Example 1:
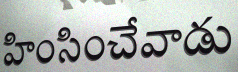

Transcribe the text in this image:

హింసించేవాడు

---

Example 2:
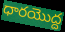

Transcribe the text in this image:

ధారయొద్ద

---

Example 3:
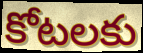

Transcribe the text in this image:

కోటలకు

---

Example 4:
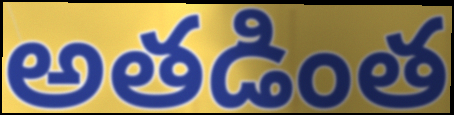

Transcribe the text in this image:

అతడింత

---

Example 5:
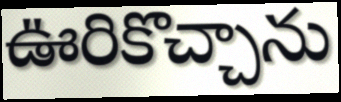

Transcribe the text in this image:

ఊరికొచ్చాను